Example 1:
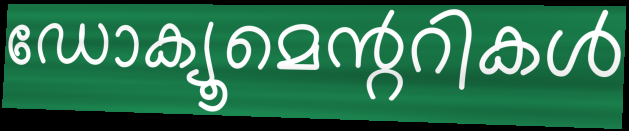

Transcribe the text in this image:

ഡോക്യൂമെന്ററികൾ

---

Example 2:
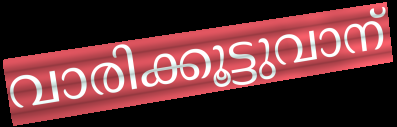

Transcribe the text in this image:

വാരിക്കൂട്ടുവാന്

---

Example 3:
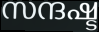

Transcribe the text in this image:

സന്ദഷ്ട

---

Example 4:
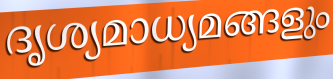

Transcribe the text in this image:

ദൃശ്യമാധ്യമങ്ങളും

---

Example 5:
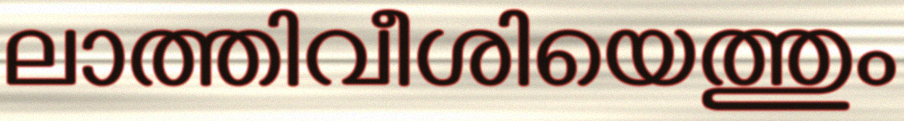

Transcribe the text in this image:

ലാത്തിവീശിയെത്തും